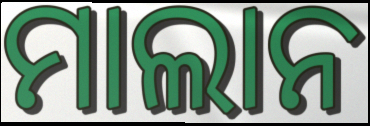
ମାଲାନ